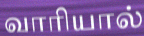
வாரியால்